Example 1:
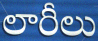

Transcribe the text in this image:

లారీలు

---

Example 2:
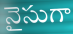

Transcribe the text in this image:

నైసుగా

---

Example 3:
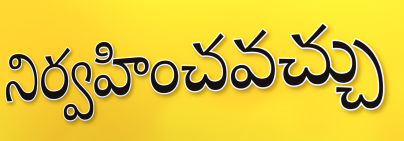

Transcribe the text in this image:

నిర్వహించవచ్చు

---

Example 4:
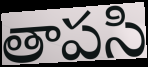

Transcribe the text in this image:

తాపసి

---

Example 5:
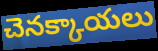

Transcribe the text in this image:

చెనక్కాయలు